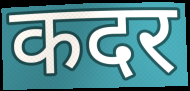
कदर